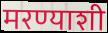
मरण्याशी